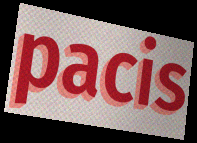
pacis